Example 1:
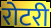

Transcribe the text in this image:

रोटरी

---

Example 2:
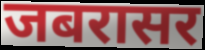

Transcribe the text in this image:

जबरासर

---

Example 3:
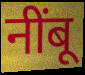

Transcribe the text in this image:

नींबू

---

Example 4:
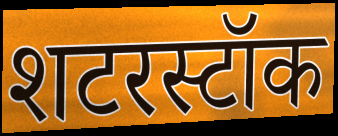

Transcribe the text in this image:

शटरस्टॉक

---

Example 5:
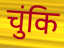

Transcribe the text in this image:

चुंकि